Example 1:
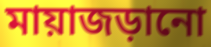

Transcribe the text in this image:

মায়াজড়ানো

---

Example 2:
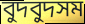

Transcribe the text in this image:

বুদবুদসম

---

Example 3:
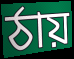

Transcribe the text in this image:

ঠায়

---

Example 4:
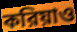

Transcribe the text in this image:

করিয়াও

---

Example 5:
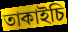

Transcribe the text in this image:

তাকাইচি